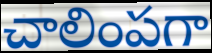
చాలింపగా